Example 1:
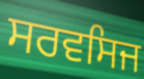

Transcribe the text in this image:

ਸਰਵਸਿਜ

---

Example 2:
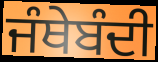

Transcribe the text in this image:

ਜੰਥੇਬੰਦੀ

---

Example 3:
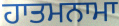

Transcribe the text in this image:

ਹਾਤਮਨਾਮਾ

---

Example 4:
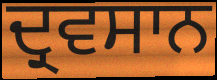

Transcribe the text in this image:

ਦ੍ਰਵਸਾਨ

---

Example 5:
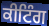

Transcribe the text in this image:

ਕੀਟਿੰਗ